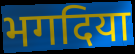
भगदिया